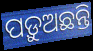
ପଡ଼ୁଅଛନ୍ତି